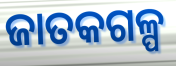
ଜାତକଗଳ୍ପ